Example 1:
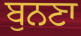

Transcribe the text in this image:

ਬੁਨਣਾ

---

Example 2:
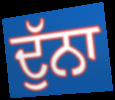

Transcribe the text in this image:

ਦੁੱਨਾ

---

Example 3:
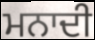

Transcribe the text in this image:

ਮਨਾਦੀ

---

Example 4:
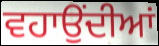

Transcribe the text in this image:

ਵਹਾਉਂਦੀਆਂ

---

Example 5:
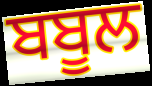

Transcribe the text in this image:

ਬਬੂਲ